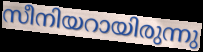
സീനിയറായിരുന്നു